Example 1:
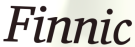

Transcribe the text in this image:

Finnic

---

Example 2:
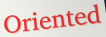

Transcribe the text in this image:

Oriented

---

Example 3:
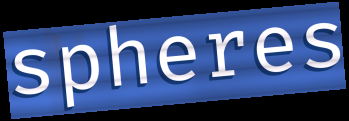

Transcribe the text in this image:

spheres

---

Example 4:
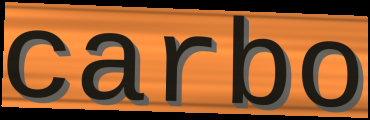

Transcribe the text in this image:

carbo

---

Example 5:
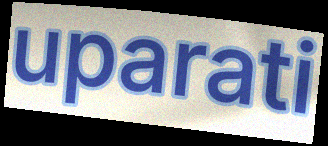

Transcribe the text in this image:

uparati